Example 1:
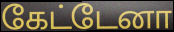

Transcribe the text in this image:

கேட்டேனா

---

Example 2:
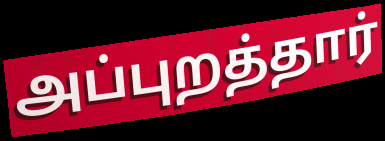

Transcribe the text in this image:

அப்புறத்தார்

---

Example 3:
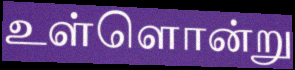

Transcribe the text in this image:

உள்ளொன்று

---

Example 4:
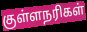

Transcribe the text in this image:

குள்ளநரிகள்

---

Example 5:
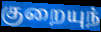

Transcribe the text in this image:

குறையுந்